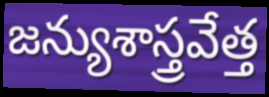
జన్యుశాస్త్రవేత్త